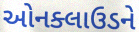
ઓનક્લાઉડને